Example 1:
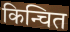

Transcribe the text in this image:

किन्चित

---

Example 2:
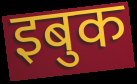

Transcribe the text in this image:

इबुक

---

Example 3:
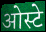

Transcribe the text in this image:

ओस्टे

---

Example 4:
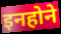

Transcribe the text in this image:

इनहोने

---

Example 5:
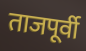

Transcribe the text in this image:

ताजपूर्वी